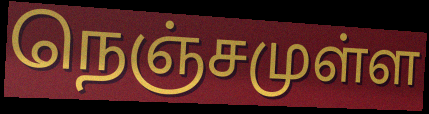
நெஞ்சமுள்ள